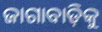
ଜାଗାବାଡ଼ିକୁ